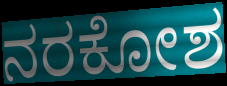
ನರಕೋಶ